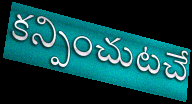
కన్పించుటచే